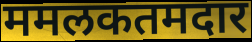
ममलकतमदार